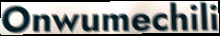
Onwumechili